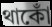
থাকোঁ